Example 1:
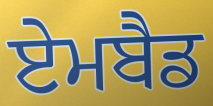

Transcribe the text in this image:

ਏਮਬੈਡ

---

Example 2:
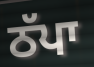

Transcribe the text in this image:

ਠੱਪਾ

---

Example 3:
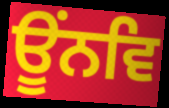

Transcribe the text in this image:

ਊਂਨਵਿ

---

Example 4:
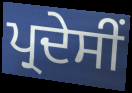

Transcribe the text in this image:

ਪ੍ਰਦੇਸੀਂ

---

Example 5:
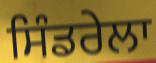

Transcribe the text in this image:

ਸਿੰਡਰੇਲਾ